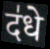
द॑धे